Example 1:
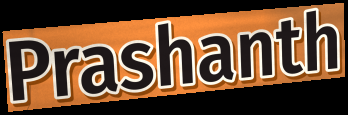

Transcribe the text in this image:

Prashanth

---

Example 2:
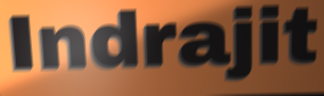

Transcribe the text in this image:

Indrajit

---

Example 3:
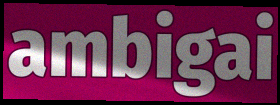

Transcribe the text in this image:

ambigai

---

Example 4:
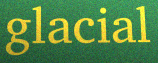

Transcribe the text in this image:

glacial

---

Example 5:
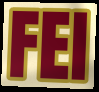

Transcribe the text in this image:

FEI